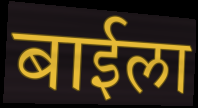
बाईला